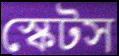
স্কেটস